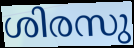
ശിരസു